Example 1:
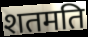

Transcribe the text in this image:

शतमति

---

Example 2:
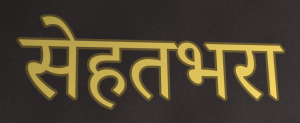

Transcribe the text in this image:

सेहतभरा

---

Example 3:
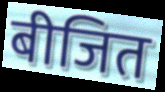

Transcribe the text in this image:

बीजित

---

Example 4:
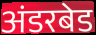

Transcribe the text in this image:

अंडरबेड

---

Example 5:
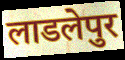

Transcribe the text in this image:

लाडलेपुर